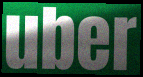
uber